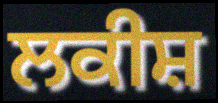
ਲਕੀਸ਼